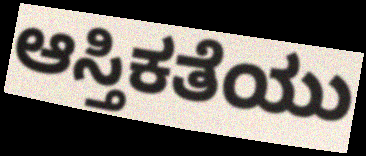
ಆಸ್ತಿಕತೆಯು